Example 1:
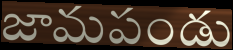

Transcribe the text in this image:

జామపండు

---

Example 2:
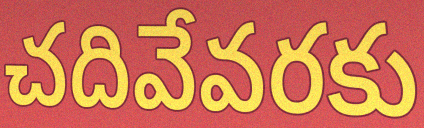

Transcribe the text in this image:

చదివేవరకు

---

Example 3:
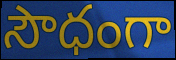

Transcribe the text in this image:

సౌధంగా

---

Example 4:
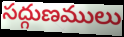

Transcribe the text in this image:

సద్గుణములు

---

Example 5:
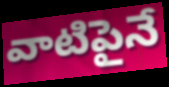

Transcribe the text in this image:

వాటిపైనే